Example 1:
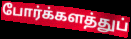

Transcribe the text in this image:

போர்க்களத்துப்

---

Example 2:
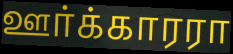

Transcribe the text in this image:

ஊர்க்காரரா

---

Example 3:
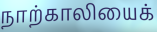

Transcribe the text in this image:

நாற்காலியைக்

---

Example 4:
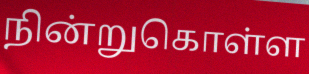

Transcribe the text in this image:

நின்றுகொள்ள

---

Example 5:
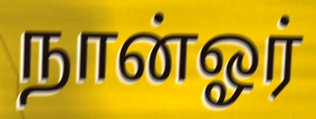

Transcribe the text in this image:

நான்ஓர்